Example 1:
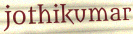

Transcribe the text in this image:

jothikumar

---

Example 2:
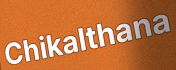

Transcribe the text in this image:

Chikalthana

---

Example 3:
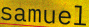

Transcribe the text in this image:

samuel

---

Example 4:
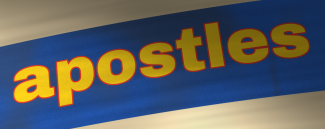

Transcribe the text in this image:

apostles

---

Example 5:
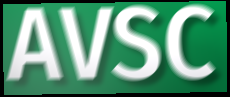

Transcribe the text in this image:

AVSC